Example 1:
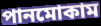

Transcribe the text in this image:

পানমোকাম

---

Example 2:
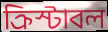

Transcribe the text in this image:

ক্রিস্টাবল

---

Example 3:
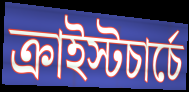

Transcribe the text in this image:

ক্রাইস্টচার্চে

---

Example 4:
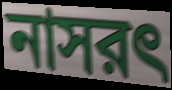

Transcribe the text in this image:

নাসরৎ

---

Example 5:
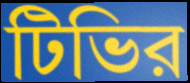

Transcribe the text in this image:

টিভির